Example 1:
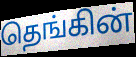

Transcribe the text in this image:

தெங்கின்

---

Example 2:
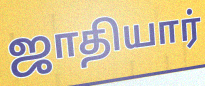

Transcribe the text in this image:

ஜாதியார்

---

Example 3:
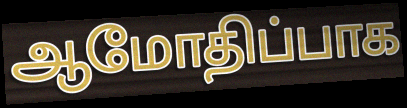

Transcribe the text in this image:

ஆமோதிப்பாக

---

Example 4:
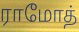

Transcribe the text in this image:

ராமோத்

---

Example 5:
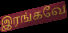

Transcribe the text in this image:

இரங்கவே